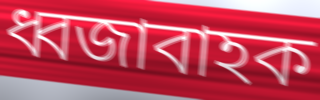
ধ্বজাবাহক